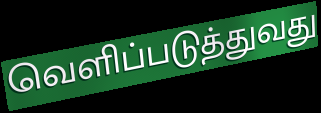
வெளிப்படுத்துவது